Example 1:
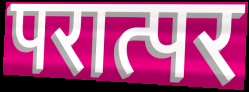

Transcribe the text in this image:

परात्पर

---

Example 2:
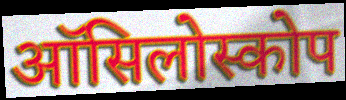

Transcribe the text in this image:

ऑसिलोस्कोप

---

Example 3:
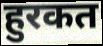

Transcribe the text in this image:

हुरकत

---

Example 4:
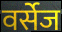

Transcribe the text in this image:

वर्सेज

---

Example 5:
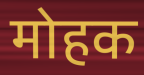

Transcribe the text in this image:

मोहक